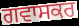
ਗਵਾਸਕਰ